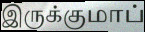
இருக்குமாப்